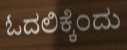
ಓದಲಿಕ್ಕೆಂದು